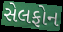
સેલફોન